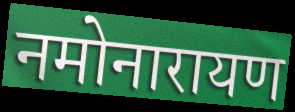
नमोनारायण